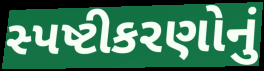
સ્પષ્ટીકરણોનું